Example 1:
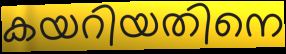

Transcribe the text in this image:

കയറിയതിനെ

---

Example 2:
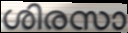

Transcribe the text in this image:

ശിരസാ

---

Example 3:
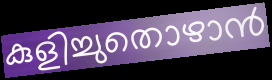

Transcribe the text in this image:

കുളിച്ചുതൊഴാൻ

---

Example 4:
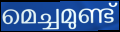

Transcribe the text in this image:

മെച്ചമുണ്ട്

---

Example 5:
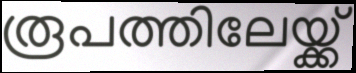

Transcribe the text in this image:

രൂപത്തിലേയ്ക്ക്